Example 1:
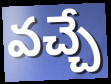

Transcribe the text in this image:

వచ్చే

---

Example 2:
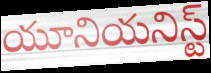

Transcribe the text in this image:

యూనియనిస్ట్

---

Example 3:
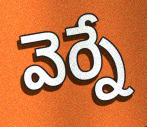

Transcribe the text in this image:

వెర్నే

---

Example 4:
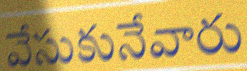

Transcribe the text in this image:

వేసుకునేవారు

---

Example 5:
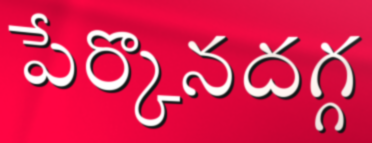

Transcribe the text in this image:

పేర్కొనదగ్గ